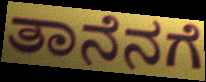
ತಾನೆನಗೆ